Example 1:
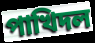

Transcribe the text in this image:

পাখিদল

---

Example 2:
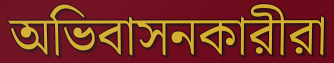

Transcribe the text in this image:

অভিবাসনকারীরা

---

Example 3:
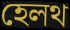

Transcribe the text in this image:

হেলথ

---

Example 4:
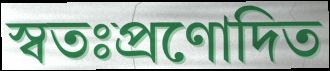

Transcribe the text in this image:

স্বতঃপ্রণোদিত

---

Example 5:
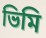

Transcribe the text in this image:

ভিমি